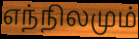
எந்நிலமும்